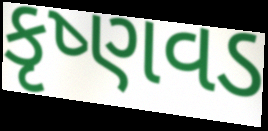
કૃષ્ણવડ